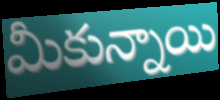
మీకున్నాయి